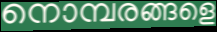
നൊമ്പരങ്ങളെ